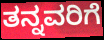
ತನ್ನವರಿಗೆ